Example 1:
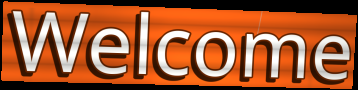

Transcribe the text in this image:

Welcome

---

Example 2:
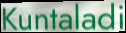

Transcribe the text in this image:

Kuntaladi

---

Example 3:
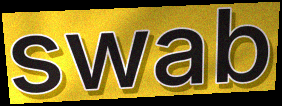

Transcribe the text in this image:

swab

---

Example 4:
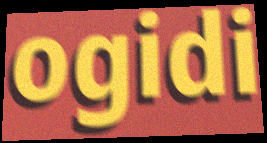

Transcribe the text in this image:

ogidi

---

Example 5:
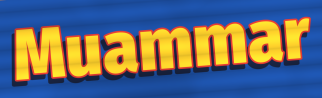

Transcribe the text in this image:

Muammar